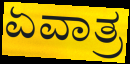
ಏವಾತ್ರ